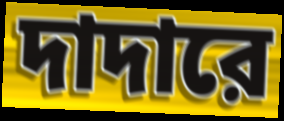
দাদারে